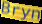
Bryn